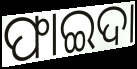
ଫାଇଦା